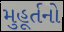
મુહૂર્તનો